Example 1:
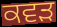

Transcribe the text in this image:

ਕਵੜ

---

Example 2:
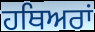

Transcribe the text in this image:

ਹਥਿਅਰਾਂ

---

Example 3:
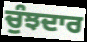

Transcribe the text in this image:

ਚੁੰਝਦਾਰ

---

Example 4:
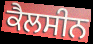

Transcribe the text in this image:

ਕੈਲਸੀਨ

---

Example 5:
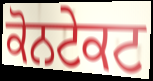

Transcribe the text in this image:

ਕੋਨਟੇਕਟ